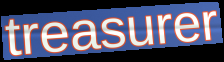
treasurer